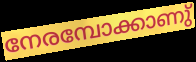
നേരമ്പോക്കാണു്